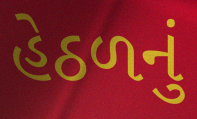
હેઠળનું